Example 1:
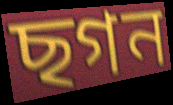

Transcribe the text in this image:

ছগন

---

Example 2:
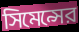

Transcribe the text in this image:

সিমেন্সের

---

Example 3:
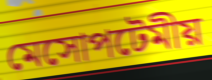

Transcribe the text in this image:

মেসোপটেমীয়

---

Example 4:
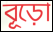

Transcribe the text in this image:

বূড়ো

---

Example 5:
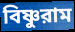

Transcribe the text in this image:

বিষ্ণুরাম